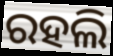
ରହଲି